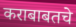
कराबाबतचे